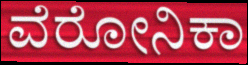
ವೆರೋನಿಕಾ